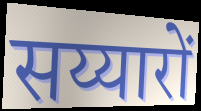
सय्यारों